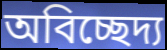
অবিচ্ছেদ্য